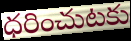
ధరించుటకు